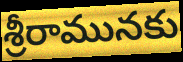
శ్రీరామునకు